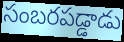
సంబరపడ్డాడు